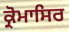
ਕ੍ਰੋਮਾਸਿਰ